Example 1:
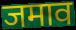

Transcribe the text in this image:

जमाव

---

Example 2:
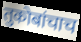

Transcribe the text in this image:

तुकोबांचाच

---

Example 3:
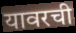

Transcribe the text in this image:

यावरची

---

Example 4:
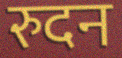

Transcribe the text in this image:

रुदन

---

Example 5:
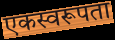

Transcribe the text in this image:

एकस्वरूपता